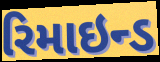
રિમાઇન્ડ